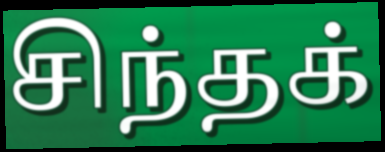
சிந்தக்